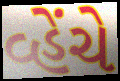
વ્હેંચે